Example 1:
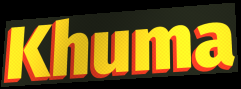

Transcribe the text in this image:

Khuma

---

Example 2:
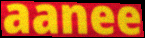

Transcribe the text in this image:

aanee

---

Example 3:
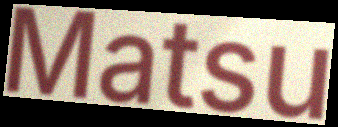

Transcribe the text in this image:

Matsu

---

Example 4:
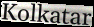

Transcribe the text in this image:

Kolkatar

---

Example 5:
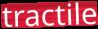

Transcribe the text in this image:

tractile